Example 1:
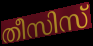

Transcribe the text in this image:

തീസിസ്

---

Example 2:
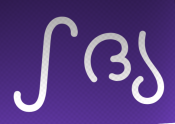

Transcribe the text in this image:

ഽദ്യ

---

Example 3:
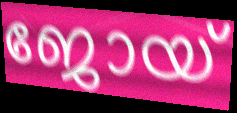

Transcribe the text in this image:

ജോയ്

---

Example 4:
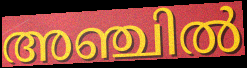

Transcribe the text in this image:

അഞ്ചിൽ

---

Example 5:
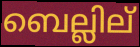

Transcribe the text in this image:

ബെല്ലില്